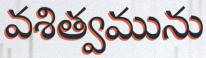
వశిత్వమును